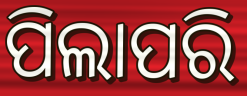
ପିଲାପରି